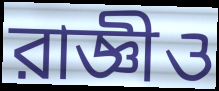
রাজ্ঞীও